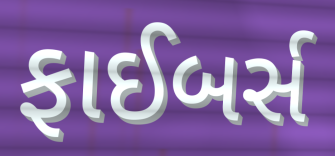
ફાઈબર્સ